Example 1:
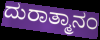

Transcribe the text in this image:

ದುರಾತ್ಮಾನಂ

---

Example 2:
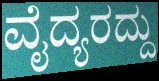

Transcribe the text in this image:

ವೈದ್ಯರದ್ದು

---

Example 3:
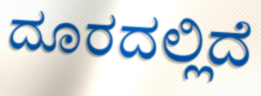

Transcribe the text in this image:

ದೂರದಲ್ಲಿದೆ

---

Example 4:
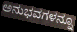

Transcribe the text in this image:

ಅನುಭವಗಳನ್ನೂ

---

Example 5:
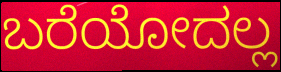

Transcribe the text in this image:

ಬರೆಯೋದಲ್ಲ